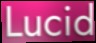
Lucid